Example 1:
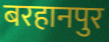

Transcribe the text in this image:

बरहानपुर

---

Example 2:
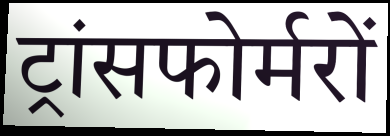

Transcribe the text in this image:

ट्रांसफोर्मरों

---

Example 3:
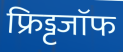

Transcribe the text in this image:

फ्रिड्टजॉफ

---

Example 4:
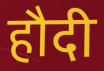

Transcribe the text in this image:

हौदी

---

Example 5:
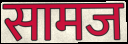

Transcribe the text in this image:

सामज